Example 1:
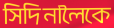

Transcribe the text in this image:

সিদিনালৈকে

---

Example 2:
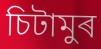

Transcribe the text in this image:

চিটামুৰ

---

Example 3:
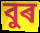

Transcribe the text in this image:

বুৰ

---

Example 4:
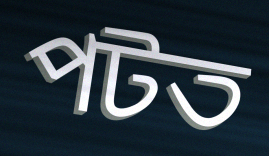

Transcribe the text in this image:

পটত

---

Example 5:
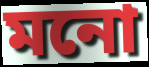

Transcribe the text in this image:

মনো